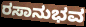
ರಸಾನುಭವ